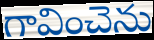
గావించెను